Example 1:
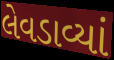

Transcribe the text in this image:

લેવડાવ્યાં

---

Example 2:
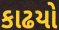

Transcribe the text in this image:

કાઢયો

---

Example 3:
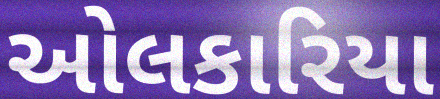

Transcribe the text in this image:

ઓલકારિયા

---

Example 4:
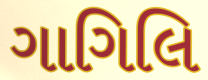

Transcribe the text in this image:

ગાગિલિ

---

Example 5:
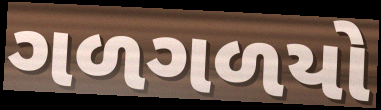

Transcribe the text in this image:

ગળગળયો